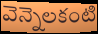
వెన్నెలకంటి